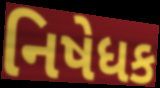
નિષેધક